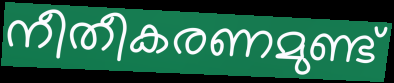
നീതീകരണമുണ്ട്